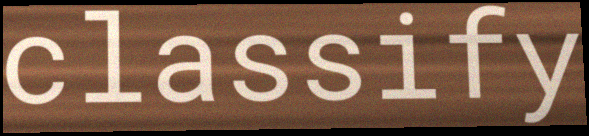
classify